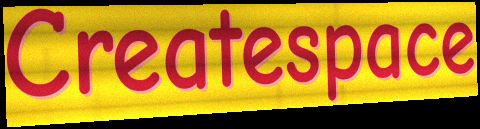
Createspace